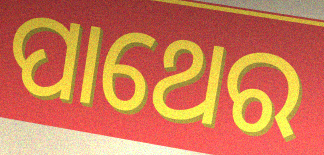
ପାଥେର